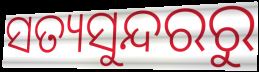
ସତ୍ୟସୁନ୍ଦରରୁ